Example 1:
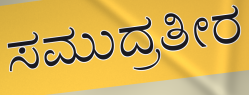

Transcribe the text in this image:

ಸಮುದ್ರತೀರ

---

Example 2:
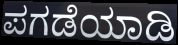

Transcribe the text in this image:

ಪಗಡೆಯಾಡಿ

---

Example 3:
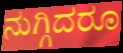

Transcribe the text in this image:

ನುಗ್ಗಿದರೂ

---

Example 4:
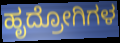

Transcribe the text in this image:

ಹೃದ್ರೋಗಿಗಳ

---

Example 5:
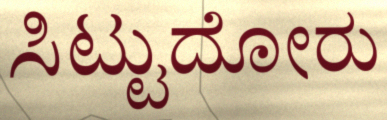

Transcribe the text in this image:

ಸಿಟ್ಟುದೋರು